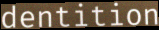
dentition